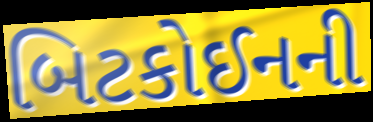
બિટકોઈનની